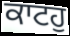
ਕਾਟਹੁ